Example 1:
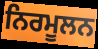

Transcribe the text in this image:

ਨਿਰਮੂਲਨ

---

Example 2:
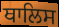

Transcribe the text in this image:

ਥਾਲਿਸ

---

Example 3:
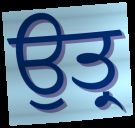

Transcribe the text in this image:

ਉਤ੍ਰ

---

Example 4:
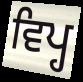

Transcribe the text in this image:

ਵਿਪ੍ਹ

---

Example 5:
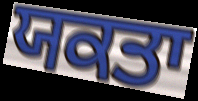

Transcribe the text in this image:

ਯਕਤਾ